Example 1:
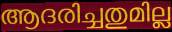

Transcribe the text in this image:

ആദരിച്ചതുമില്ല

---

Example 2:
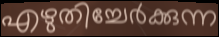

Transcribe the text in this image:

എഴുതിച്ചേർക്കുന്ന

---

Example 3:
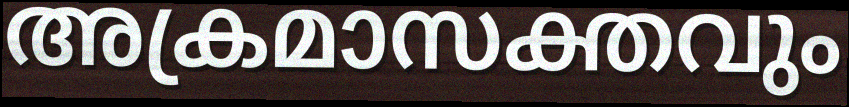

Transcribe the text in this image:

അക്രമാസക്തവും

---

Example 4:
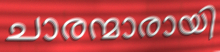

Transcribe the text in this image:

ചാരന്മാരായി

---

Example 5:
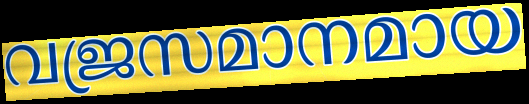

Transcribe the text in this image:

വജ്രസമാനമായ